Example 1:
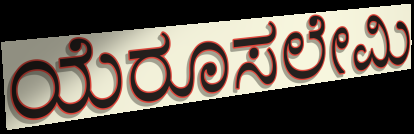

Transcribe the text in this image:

ಯೆರೂಸಲೇಮಿ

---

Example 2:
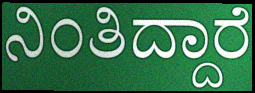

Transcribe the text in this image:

ನಿಂತಿದ್ದಾರೆ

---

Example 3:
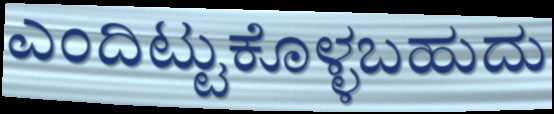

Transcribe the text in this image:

ಎಂದಿಟ್ಟುಕೊಳ್ಳಬಹುದು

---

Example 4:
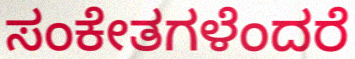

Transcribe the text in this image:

ಸಂಕೇತಗಳೆಂದರೆ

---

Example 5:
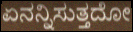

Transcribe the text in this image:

ಏನನ್ನಿಸುತ್ತದೋ